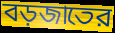
বড়জাতের